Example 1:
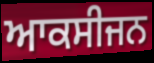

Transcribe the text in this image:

ਆਕਸੀਜਨ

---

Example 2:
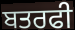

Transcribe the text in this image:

ਬਤਰਫੀ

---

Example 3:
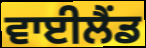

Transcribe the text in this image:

ਵਾਈਲੈਂਡ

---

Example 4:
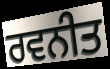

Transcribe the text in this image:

ਰਵਨੀਤ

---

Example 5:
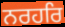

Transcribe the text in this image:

ਨਰਹਰਿ